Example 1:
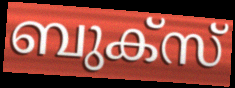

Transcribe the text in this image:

ബുക്സ്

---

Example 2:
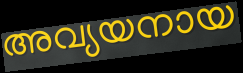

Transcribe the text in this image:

അവ്യയനായ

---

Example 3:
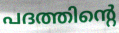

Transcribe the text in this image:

പദത്തിന്റെ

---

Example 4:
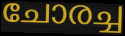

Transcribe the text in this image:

ചോരച്ച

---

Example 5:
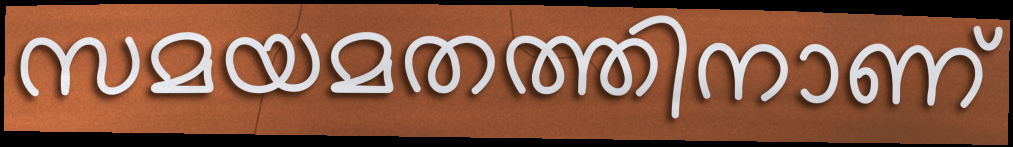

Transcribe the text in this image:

സമയമതത്തിനാണ്